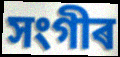
সংগীৰ